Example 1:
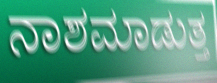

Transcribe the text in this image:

ನಾಶಮಾಡುತ್ತ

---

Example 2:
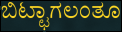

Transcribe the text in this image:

ಬಿಟ್ಟಾಗಲಂತೂ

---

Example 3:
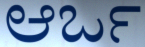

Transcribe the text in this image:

ಆರ್ಒ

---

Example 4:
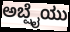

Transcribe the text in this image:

ಅಬ್ಷೈಯು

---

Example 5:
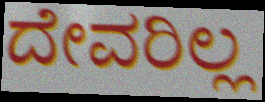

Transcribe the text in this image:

ದೇವರಿಲ್ಲ